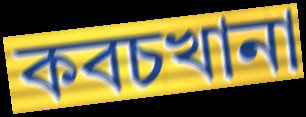
কবচখানা